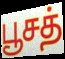
பூசத்